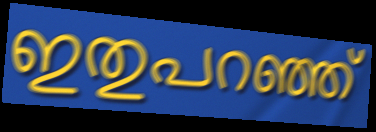
ഇതുപറഞ്ഞ്